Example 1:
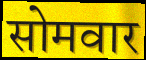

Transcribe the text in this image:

सोमवार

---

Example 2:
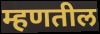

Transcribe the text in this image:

म्हणतील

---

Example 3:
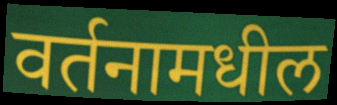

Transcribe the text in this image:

वर्तनामधील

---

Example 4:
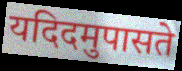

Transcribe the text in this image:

यदिदमुपासते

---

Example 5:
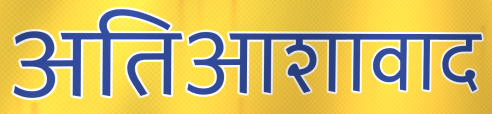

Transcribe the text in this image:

अतिआशावाद